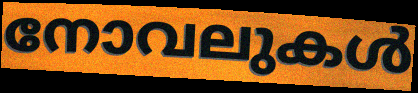
നോവലുകൾ